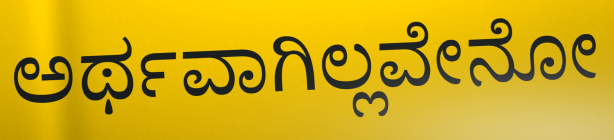
ಅರ್ಥವಾಗಿಲ್ಲವೇನೋ